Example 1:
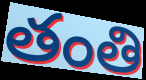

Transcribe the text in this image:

తంతి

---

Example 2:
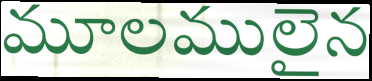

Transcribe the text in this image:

మూలములైన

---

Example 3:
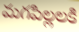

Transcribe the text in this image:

మగపిల్లలకి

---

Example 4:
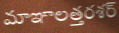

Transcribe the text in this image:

మాఞాలత్తరశర్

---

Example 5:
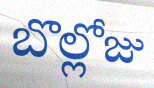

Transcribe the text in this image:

బొల్లోజు